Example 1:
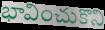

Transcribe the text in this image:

భావించుకొని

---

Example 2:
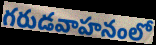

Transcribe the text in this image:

గరుడవాహనంలో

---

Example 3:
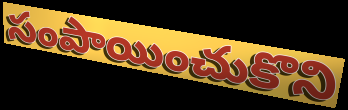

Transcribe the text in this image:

సంపాయించుకొని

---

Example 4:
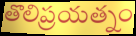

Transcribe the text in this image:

తొలిప్రయత్నం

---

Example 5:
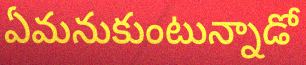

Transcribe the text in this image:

ఏమనుకుంటున్నాడో